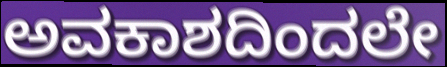
ಅವಕಾಶದಿಂದಲೇ